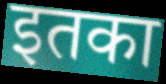
इतका